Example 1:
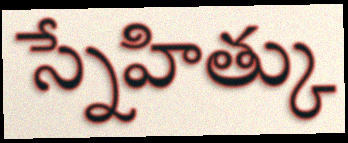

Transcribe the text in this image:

స్నేహిత్కు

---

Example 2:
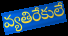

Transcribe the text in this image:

వ్యతిరేకులే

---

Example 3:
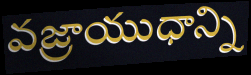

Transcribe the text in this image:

వజ్రాయుధాన్ని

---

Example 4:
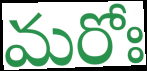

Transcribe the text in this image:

మరోః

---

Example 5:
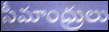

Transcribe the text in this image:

సీమాంధ్రులు